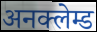
अनक्लेम्ड